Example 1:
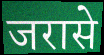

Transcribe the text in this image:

जरासे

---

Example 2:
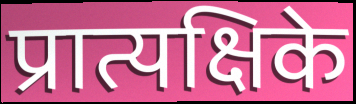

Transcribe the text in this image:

प्रात्यक्षिके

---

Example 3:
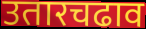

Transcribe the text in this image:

उतारचढाव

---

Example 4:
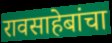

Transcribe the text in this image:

रावसाहेबांचा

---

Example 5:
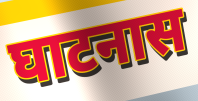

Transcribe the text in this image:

घाटनास